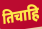
तिचाहि